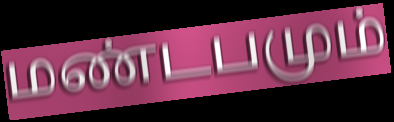
மண்டபமும்